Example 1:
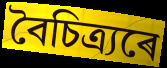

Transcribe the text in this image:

বৈচিত্ৰ্যৰে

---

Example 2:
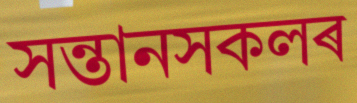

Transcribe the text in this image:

সন্তানসকলৰ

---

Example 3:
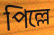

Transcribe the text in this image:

পিল্লে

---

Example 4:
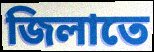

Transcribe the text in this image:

জিলাতে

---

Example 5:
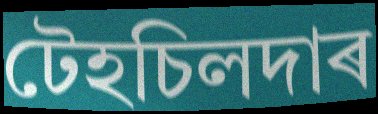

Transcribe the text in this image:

টেহচিলদাৰ